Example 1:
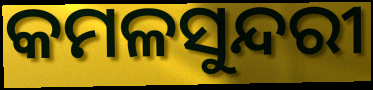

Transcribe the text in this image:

କମଳସୁନ୍ଦରୀ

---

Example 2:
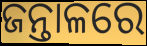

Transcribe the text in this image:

ଜନ୍ତାଳରେ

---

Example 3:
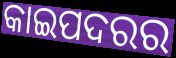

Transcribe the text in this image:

କାଇପଦରର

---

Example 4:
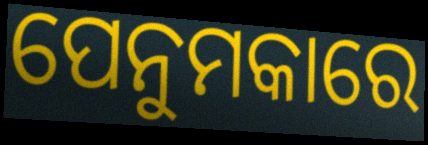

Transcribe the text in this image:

ପେନୁମକାରେ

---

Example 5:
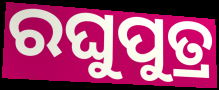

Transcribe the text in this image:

ରଘୁପୁତ୍ର